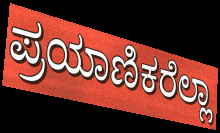
ಪ್ರಯಾಣಿಕರೆಲ್ಲಾ